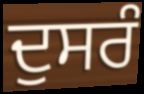
ਦੁਸਰੰ